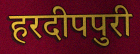
हरदीपपुरी